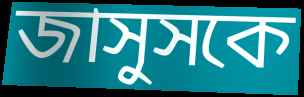
জাসুসকে